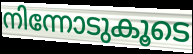
നിന്നോടുകൂടെ